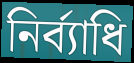
নির্ব্যাধি